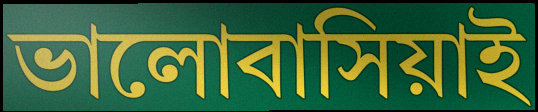
ভালোবাসিয়াই